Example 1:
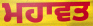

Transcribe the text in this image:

ਮਹਾਵਤ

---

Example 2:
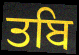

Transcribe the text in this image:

ਤਬਿ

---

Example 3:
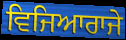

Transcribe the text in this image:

ਵਿਜਿਆਰਾਜੇ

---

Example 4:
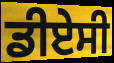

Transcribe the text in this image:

ਡੀਏਸੀ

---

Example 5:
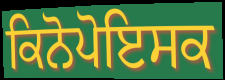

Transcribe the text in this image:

ਕਿਨੋਪੋਇਸਕ